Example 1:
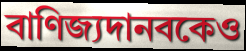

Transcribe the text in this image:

বাণিজ্যদানবকেও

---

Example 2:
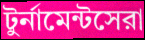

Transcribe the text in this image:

টুর্নামেন্টসেরা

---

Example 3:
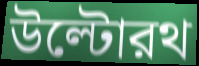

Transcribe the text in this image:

উল্টোরথ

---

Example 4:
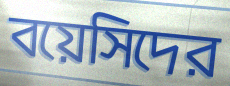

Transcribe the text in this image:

বয়েসিদের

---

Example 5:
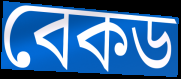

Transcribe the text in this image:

বেকড